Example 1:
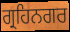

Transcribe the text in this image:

ਗ੍ਰਹਿਨਗਰ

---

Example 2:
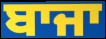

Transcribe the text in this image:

ਬਾਜਾ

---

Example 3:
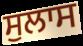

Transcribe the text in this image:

ਸੁਲਾਸ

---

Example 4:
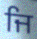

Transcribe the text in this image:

ਜਿ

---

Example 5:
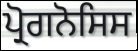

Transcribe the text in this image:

ਪ੍ਰੋਗਨੋਸਿਸ